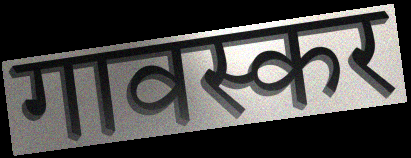
गावस्कर